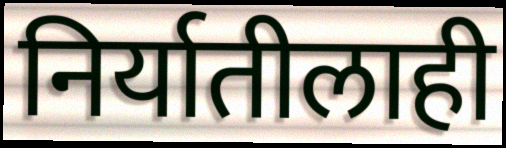
निर्यातीलाही